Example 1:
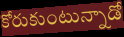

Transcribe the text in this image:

కోరుకుంటున్నాడో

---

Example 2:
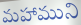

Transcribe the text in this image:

మహాముని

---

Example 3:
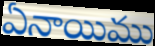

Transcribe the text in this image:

ఏనాయిము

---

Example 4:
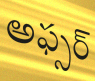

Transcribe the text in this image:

అఫ్సర్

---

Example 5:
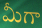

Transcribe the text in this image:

మీగా